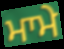
ਮਾਮੇ